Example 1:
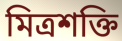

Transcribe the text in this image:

মিত্ৰশক্তি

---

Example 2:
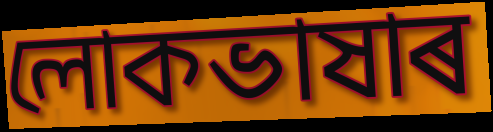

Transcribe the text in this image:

লোকভাষাৰ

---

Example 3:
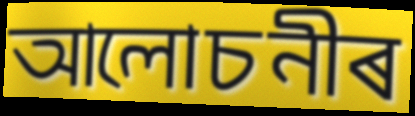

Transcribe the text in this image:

আলোচনীৰ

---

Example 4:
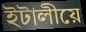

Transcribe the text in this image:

ইটালীয়ে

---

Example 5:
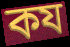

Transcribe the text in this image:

কয